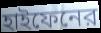
হাইফেনের